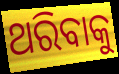
ଥରିବାକୁ